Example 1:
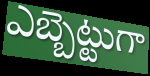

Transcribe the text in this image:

ఎబ్బెట్టుగా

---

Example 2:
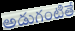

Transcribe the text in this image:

అడుగంటితే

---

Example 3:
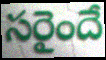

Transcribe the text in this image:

సరైందే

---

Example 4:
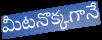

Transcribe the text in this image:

మీటనొక్కగానే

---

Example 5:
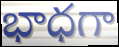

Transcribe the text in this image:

భాధగా